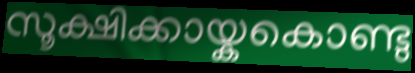
സൂക്ഷിക്കായ്കകൊണ്ടു